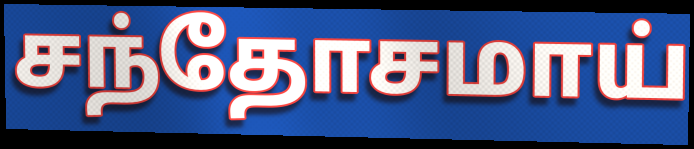
சந்தோசமாய்